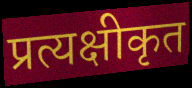
प्रत्यक्षीकृत